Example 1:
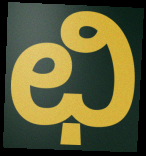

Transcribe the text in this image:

ಛಿ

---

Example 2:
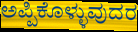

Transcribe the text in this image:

ಅಪ್ಪಿಕೊಳ್ಳುವುದರ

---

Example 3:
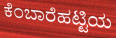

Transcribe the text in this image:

ಕೆಂಬಾರೆಹಟ್ಟಿಯ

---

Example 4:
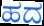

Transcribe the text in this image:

ಹದ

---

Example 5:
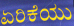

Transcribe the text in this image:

ಏರಿಕೆಯು